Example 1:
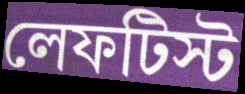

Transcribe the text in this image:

লেফটিস্ট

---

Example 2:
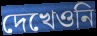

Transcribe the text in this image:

দেখেওনি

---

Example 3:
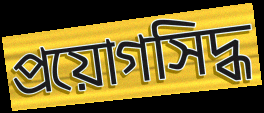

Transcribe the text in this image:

প্রয়োগসিদ্ধ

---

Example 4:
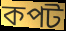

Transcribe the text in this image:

কপট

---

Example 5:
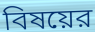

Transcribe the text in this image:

বিষয়ের